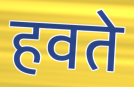
हवते